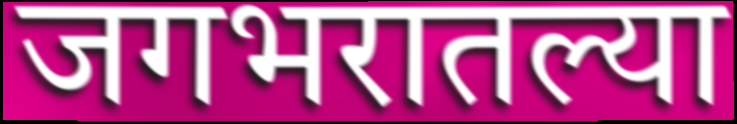
जगभरातल्या